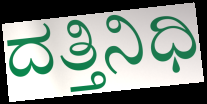
ದತ್ತಿನಿಧಿ